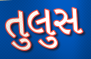
તુલુસ